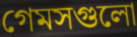
গেমসগুলো